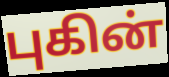
புகின்